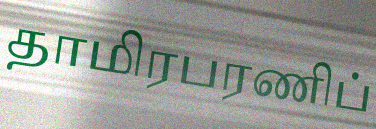
தாமிரபரணிப்